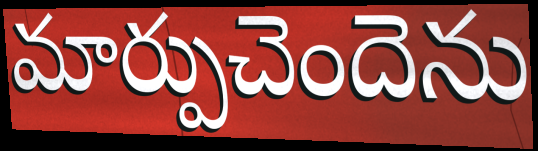
మార్పుచెందెను